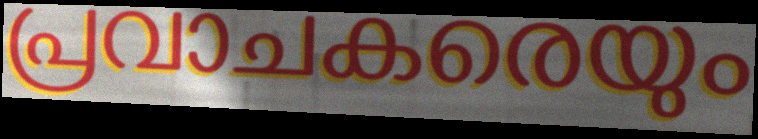
പ്രവാചകരെയും